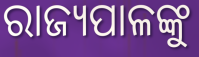
ରାଜ୍ୟପାଳଙ୍କୁ